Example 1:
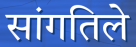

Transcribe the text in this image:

सांगतिले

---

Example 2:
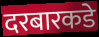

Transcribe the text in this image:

दरबारकडे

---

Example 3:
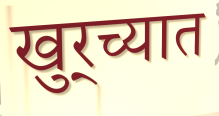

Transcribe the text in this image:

खुर्च्यात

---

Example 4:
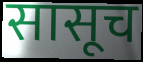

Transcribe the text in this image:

सासूच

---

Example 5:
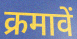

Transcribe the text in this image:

क्रमावें